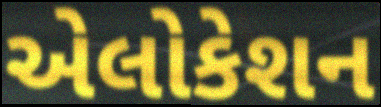
એલોકેશન